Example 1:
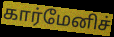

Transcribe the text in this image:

கார்மேனிச்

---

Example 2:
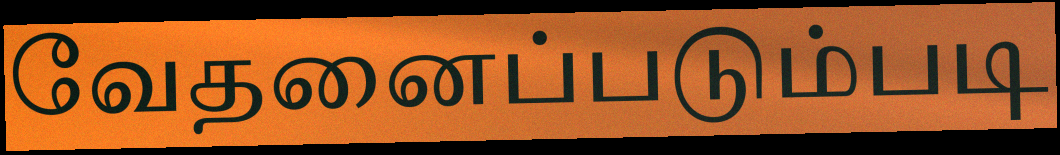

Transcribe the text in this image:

வேதனைப்படும்படி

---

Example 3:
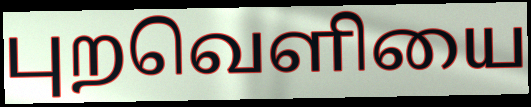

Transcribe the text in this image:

புறவெளியை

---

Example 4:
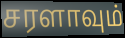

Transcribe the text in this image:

சரளாவும்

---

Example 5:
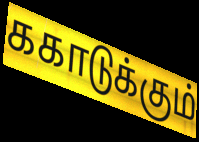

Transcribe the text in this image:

ககாடுக்கும்